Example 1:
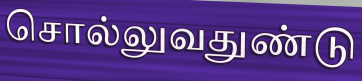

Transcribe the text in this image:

சொல்லுவதுண்டு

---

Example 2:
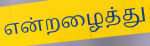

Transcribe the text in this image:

என்றழைத்து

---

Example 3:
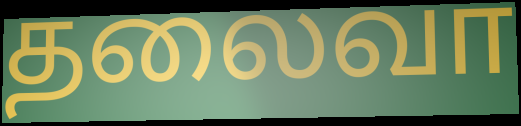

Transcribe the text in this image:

தலைவா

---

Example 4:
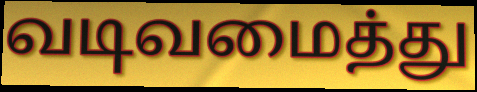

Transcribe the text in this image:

வடிவமைத்து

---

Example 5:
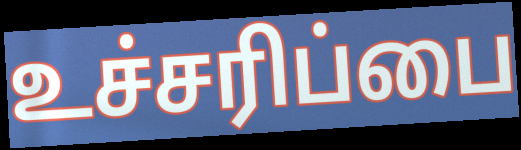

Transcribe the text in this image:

உச்சரிப்பை